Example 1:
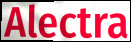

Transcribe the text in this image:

Alectra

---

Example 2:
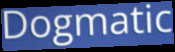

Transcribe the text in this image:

Dogmatic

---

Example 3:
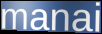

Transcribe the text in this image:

manai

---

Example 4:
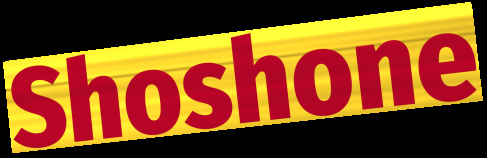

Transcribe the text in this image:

Shoshone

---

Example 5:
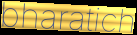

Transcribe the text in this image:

bharatich